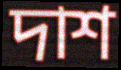
দাশ